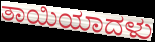
ತಾಯಿಯಾದಳು